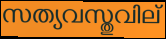
സത്യവസ്തുവില്